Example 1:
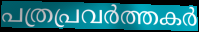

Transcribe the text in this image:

പത്രപ്രവർത്തകർ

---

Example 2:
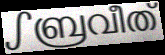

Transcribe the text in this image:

ഽബ്രവീത്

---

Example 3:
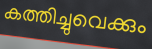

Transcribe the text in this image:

കത്തിച്ചുവെക്കും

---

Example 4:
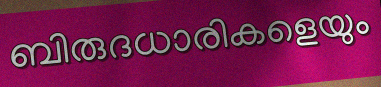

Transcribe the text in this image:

ബിരുദധാരികളെയും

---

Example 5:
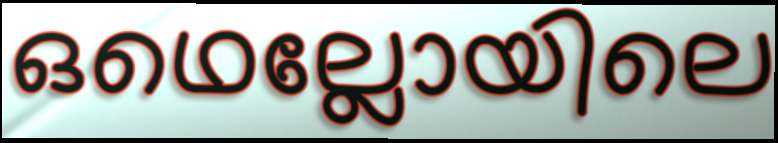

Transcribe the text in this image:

ഒഥെല്ലോയിലെ